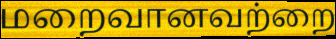
மறைவானவற்றை